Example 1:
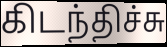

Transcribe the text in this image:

கிடந்திச்சு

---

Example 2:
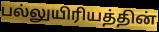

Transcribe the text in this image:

பல்லுயிரியத்தின்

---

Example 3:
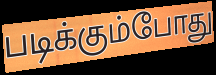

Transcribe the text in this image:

படிக்கும்போது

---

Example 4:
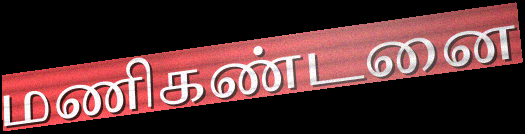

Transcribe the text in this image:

மணிகண்டனை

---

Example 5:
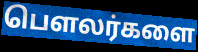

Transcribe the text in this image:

பௌலர்களை